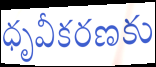
ధృవీకరణకు